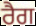
ਰੈਗ